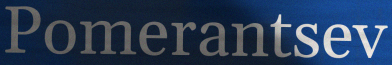
Pomerantsev